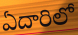
ఏదారిలో